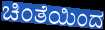
ಚಿಂತೆಯಿಂದ